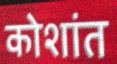
कोशांत